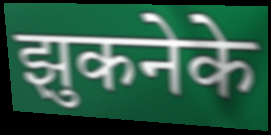
झुकनेके